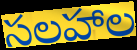
సలహాల